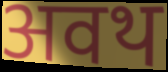
अवथ